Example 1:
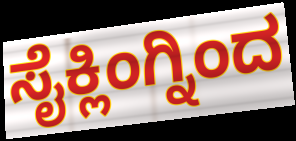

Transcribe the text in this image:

ಸೈಕ್ಲಿಂಗ್ನಿಂದ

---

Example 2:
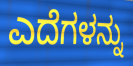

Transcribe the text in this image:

ಎದೆಗಳನ್ನು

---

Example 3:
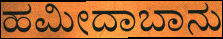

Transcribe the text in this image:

ಹಮೀದಾಬಾನು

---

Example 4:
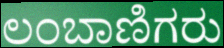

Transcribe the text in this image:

ಲಂಬಾಣಿಗರು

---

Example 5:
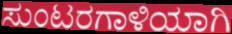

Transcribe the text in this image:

ಸುಂಟರಗಾಳಿಯಾಗಿ